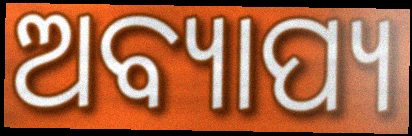
ଅବ୍ୟାପ୍ୟ